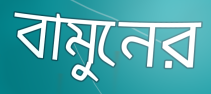
বামুনের